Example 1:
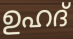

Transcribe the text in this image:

ഉഹദ്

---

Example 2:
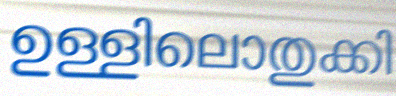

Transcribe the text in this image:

ഉള്ളിലൊതുക്കി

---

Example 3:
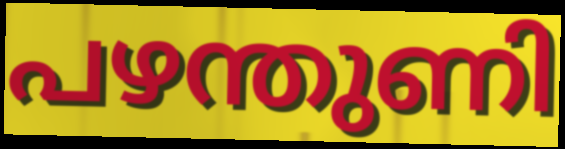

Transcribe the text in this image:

പഴന്തുണി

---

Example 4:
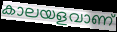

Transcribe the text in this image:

കാലയളവാണ്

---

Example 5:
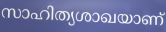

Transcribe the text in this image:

സാഹിത്യശാഖയാണ്